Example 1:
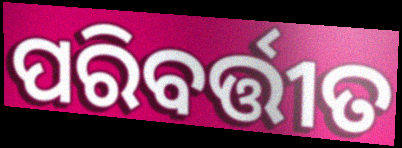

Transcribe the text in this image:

ପରିବର୍ତ୍ତୀତ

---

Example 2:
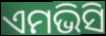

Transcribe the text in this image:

ଏମଭିସି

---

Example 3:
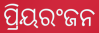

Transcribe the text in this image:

ପ୍ରିୟରଂଜନ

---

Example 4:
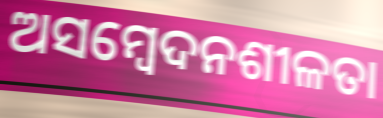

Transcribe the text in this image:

ଅସମ୍ବେଦନଶୀଳତା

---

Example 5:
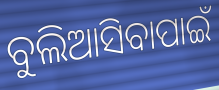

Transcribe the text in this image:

ବୁଲିଆସିବାପାଇଁ